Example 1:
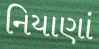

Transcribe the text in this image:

નિયાણાં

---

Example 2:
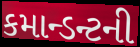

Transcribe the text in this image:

કમાન્ડન્ટની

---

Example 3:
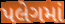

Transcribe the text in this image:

પલેગમાં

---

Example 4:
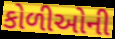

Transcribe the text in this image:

કોળીઓની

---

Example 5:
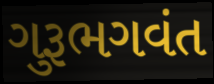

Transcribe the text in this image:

ગુરૂભગવંત